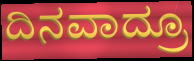
ದಿನವಾದ್ರೂ